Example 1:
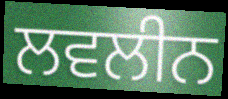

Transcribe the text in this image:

ਲਵਲੀਨ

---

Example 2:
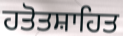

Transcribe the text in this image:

ਹਤੋਤਸ਼ਾਹਿਤ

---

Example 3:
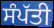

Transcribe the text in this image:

ਸੰਪੱਤੀ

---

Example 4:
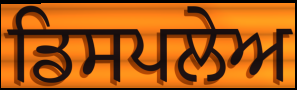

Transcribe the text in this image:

ਡਿਸਪਲੇਅ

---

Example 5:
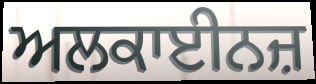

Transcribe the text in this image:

ਅਲਕਾਈਨਜ਼